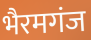
भैरमगंज